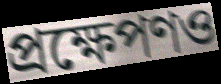
প্রক্ষেপণও